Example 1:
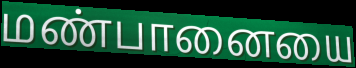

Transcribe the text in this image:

மண்பானையை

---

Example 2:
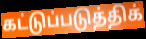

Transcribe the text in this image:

கட்டுப்படுத்திக்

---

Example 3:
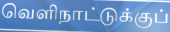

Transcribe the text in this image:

வெளிநாட்டுக்குப்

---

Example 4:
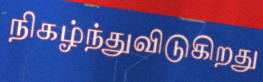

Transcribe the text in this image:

நிகழ்ந்துவிடுகிறது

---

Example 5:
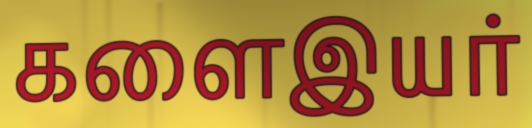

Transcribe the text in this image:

களைஇயர்